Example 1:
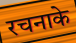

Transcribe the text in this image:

रचनाके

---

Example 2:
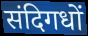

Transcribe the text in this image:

संदिगधों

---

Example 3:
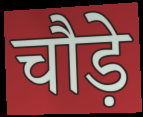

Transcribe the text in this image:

चौड़े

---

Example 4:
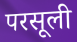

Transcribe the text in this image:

परसूली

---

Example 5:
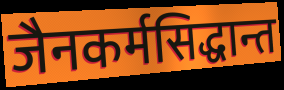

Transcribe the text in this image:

जैनकर्मसिद्धान्त